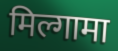
मिल्गामा